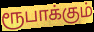
ரூபாக்கும்